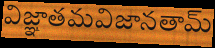
విజ్ఞాతమవిజానతామ్